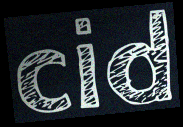
cid